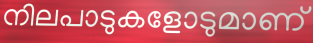
നിലപാടുകളോടുമാണ്